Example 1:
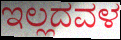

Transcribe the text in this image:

ಇಲ್ಲದವಳ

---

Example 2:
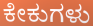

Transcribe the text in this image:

ಕೇಕುಗಳು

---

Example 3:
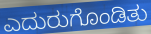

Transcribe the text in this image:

ಎದುರುಗೊಂಡಿತು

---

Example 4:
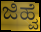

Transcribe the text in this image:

ಜಿಹ್ವೆ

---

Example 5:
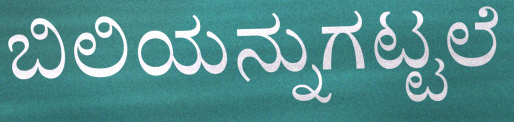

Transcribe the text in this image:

ಬಿಲಿಯನ್ನುಗಟ್ಟಲೆ